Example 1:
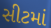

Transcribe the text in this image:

સીટમાં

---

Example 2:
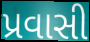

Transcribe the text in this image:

પ્રવાસી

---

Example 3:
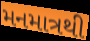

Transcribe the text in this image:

મનમાત્રથી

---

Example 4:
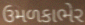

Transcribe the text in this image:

ઉમળકાભેર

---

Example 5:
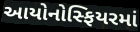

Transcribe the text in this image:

આયોનોસ્ફિયરમાં